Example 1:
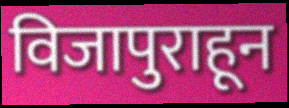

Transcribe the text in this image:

विजापुराहून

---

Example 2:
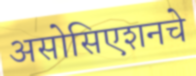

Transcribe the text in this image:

असोसिएशनचे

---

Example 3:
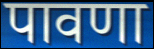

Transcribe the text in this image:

पावणा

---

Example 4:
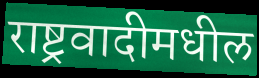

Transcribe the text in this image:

राष्ट्रवादीमधील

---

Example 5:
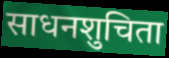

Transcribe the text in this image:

साधनशुचिता